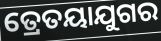
ତ୍ରେତୟାଯୁଗର